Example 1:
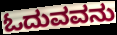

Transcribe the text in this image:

ಓದುವವನು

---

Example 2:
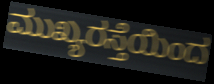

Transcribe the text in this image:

ಮುಖ್ಯರಸ್ತೆಯಿಂದ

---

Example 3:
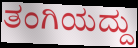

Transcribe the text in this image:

ತಂಗಿಯದ್ದು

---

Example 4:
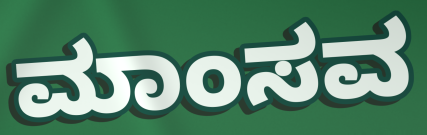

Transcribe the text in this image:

ಮಾಂಸವ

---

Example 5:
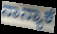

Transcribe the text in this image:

ನಾನ್ಯಾಕೆ